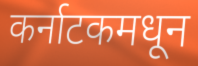
कर्नाटकमधून